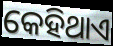
କେହିଥାଏ